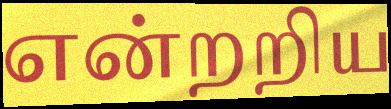
என்றறிய